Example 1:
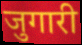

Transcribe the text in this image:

जुगारी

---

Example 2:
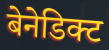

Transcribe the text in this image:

बेनेडिक्ट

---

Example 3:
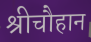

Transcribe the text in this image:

श्रीचौहान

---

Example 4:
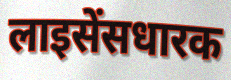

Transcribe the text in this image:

लाइसेंसधारक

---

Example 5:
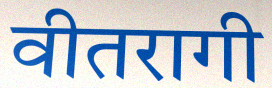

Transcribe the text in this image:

वीतरागी